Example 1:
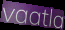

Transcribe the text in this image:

vaatla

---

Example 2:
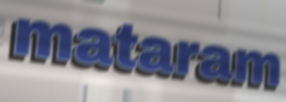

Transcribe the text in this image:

mataram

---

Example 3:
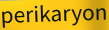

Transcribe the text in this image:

perikaryon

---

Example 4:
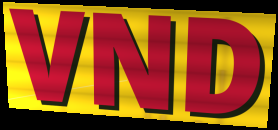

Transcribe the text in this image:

VND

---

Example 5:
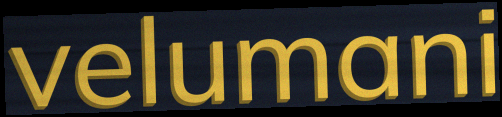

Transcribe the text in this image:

velumani